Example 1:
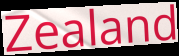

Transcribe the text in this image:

Zealand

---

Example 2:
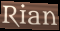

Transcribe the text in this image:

Rian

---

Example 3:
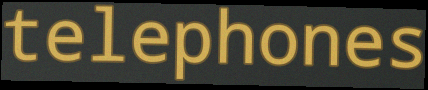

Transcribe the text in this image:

telephones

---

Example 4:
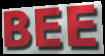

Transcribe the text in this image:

BEE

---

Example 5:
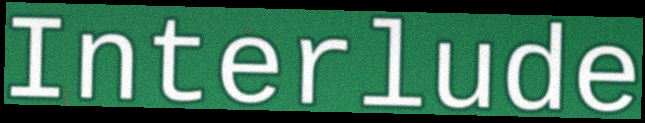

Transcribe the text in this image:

Interlude